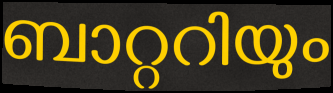
ബാറ്ററിയും